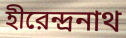
হীরেন্দ্রনাথ